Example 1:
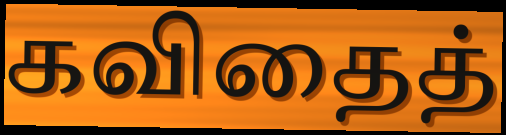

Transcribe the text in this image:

கவிதைத்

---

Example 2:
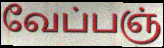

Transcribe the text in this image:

வேப்பஞ்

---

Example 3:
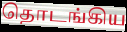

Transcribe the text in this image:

தொடங்கிய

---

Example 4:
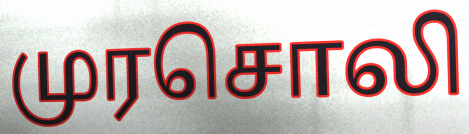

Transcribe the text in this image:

முரசொலி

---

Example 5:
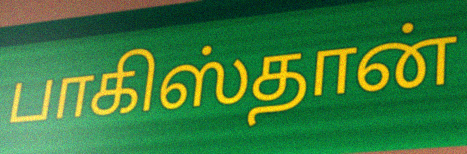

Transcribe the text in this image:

பாகிஸ்தான்